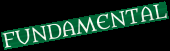
FUNDAMENTAL